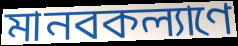
মানবকল্যাণে